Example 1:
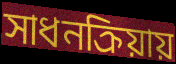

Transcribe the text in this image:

সাধনক্রিয়ায়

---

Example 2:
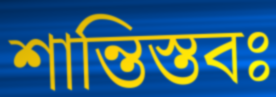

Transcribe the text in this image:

শান্তিস্তবঃ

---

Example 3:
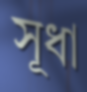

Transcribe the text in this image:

সূধা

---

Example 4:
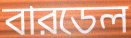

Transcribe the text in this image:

বারডেল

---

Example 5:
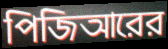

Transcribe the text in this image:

পিজিআরের